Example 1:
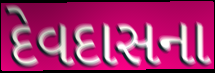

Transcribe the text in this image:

દેવદાસના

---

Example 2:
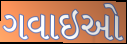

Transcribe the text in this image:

ગવાઇઓ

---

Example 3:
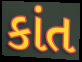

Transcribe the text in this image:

કાંત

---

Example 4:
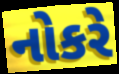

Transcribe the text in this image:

નોકરે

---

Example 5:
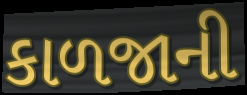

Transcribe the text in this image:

કાળજાની